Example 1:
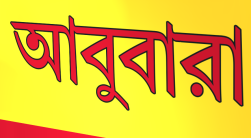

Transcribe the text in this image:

আবুবারা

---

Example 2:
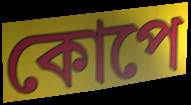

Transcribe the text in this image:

কোপে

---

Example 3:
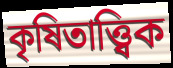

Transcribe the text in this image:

কৃষিতাত্ত্বিক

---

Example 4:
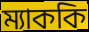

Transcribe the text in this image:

ম্যাককি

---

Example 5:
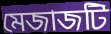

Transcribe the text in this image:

মেজাজটি